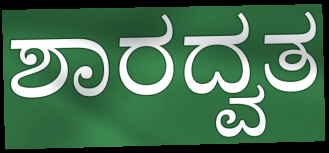
ಶಾರದ್ವತ